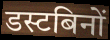
डस्टबिनों